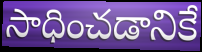
సాధించడానికే